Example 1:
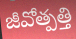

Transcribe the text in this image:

జీవోత్పత్తి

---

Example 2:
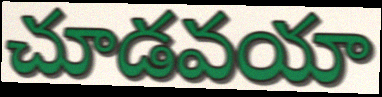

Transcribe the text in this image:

చూడవయా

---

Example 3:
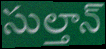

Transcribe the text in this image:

సుల్తాన్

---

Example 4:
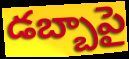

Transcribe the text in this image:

డబ్బాపై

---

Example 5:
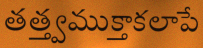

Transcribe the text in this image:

తత్త్వముక్తాకలాపే